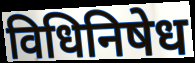
विधिनिषेध